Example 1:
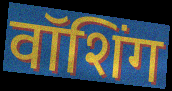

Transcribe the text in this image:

वॉशिंग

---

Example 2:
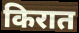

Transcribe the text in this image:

किरात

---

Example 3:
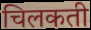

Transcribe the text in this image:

चिलकती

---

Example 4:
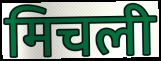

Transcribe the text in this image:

मिचली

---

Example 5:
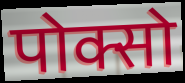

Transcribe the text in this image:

पोक्सो